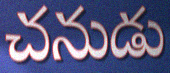
చనుడు